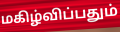
மகிழ்விப்பதும்